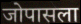
जोपासला